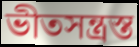
ভীতসন্ত্রস্ত